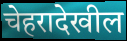
चेहरादेखील